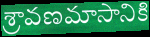
శ్రావణమాసానికి